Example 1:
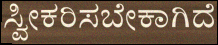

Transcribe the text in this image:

ಸ್ವೀಕರಿಸಬೇಕಾಗಿದೆ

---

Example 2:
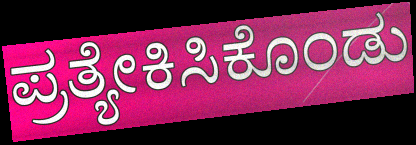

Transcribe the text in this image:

ಪ್ರತ್ಯೇಕಿಸಿಕೊಂಡು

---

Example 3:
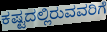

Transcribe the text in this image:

ಕಷ್ಟದಲ್ಲಿರುವವರಿಗೆ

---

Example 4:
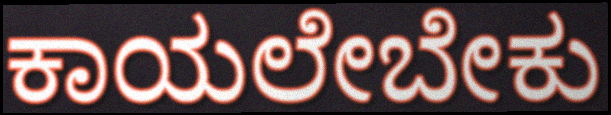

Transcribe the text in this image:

ಕಾಯಲೇಬೇಕು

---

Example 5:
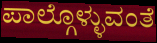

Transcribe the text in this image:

ಪಾಲ್ಗೊಳ್ಳುವಂತೆ